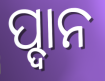
ପ୍ଦାନ